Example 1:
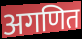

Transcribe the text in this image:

अगणित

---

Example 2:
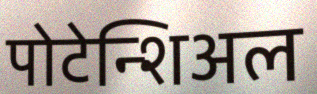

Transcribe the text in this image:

पोटेन्शिअल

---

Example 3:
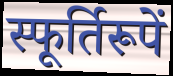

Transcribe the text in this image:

स्फूर्तिरूपें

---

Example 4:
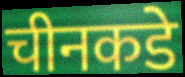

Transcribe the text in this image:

चीनकडे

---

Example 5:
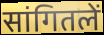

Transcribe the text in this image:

सांगितलें